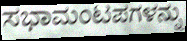
ಸಭಾಮಂಟಪಗಳನ್ನು